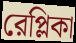
রেপ্লিকা